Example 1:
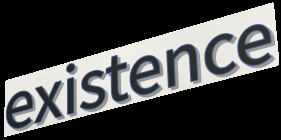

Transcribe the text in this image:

existence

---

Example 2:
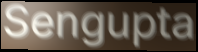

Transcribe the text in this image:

Sengupta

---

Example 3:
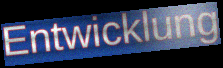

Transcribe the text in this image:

Entwicklung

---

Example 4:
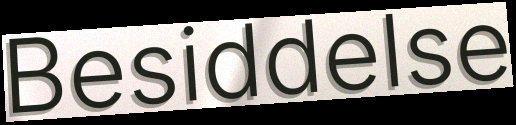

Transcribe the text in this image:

Besiddelse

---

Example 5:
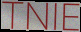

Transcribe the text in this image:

TNIE